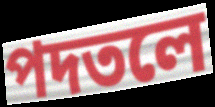
পদতলে